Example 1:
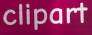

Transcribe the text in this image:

clipart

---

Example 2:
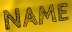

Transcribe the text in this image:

NAME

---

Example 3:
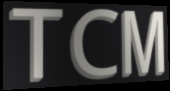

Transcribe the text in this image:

TCM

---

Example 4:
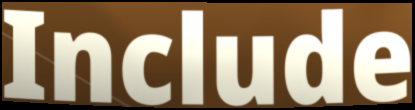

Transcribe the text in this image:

Include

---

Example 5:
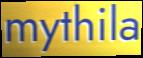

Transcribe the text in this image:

mythila